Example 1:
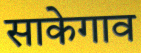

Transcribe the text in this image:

साकेगाव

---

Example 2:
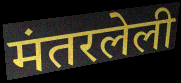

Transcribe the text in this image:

मंतरलेली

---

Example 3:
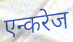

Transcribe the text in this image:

एन्करेज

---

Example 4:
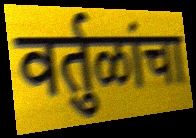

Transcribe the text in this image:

वर्तुळांचा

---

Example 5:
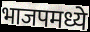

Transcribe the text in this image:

भाजपमध्ये